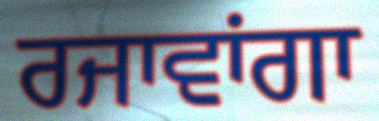
ਰਜਾਵਾਂਗਾ